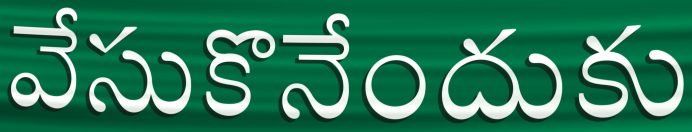
వేసుకొనేందుకు